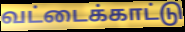
வட்டைக்காட்டு